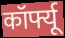
कॉर्फ्यू